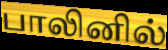
பாலினில்